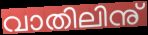
വാതിലിനു്